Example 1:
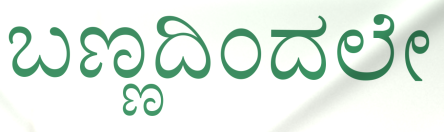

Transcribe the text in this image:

ಬಣ್ಣದಿಂದಲೇ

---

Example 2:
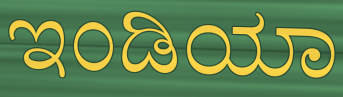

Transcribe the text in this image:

ಇಂಡಿಯಾ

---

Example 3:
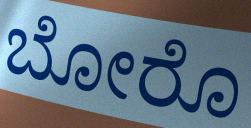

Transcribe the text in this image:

ಬೋರೊ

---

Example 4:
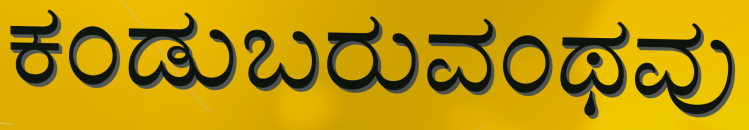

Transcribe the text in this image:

ಕಂಡುಬರುವಂಥವು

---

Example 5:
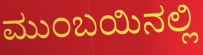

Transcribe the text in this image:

ಮುಂಬಯಿನಲ್ಲಿ